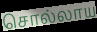
சொல்லாய